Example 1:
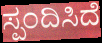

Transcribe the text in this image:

ಸ್ಪಂದಿಸಿದೆ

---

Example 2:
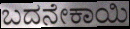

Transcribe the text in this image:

ಬದನೇಕಾಯಿ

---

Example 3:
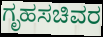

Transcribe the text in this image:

ಗೃಹಸಚಿವರ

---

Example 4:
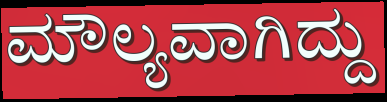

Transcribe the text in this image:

ಮೌಲ್ಯವಾಗಿದ್ದು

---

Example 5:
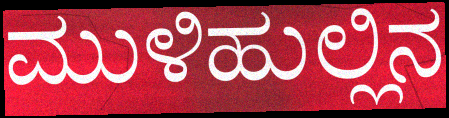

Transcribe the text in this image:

ಮುಳಿಹುಲ್ಲಿನ